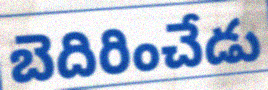
బెదిరించేడు